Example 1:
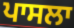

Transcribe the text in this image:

ਪਾਸਲਾ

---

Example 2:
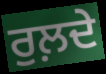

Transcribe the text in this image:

ਰੁਲ਼ਦੇ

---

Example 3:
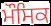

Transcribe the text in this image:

ਮੌਸਿਕ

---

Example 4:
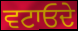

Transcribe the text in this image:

ਵਟਾਓਦੇ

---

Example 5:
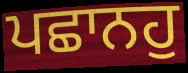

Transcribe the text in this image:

ਪਛਾਨਹੁ